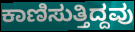
ಕಾಣಿಸುತ್ತಿದ್ದವು